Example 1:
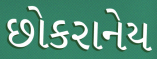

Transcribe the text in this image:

છોકરાનેય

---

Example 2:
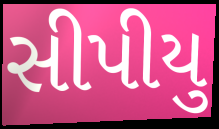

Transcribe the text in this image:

સીપીયુ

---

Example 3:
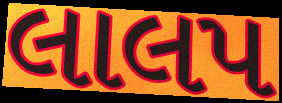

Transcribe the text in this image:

લાલપ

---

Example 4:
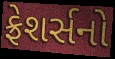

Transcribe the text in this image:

ફ્રેશર્સનો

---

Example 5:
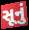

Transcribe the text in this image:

સૂનું